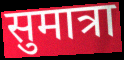
सुमात्रा